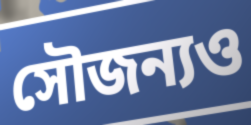
সৌজন্যও